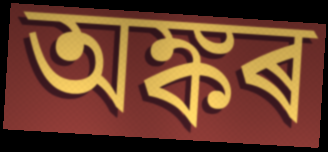
অঙ্কৰ